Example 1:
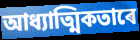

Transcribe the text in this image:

আধ্যাত্মিকতাৰে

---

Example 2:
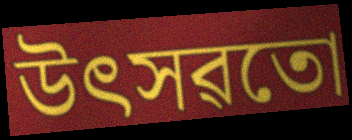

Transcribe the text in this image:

উৎসৱতো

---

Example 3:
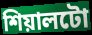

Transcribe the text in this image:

শিয়ালটো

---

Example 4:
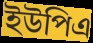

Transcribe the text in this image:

ইউপিএ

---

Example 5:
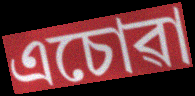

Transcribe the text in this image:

এচোৱা